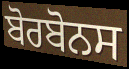
ਬੋਰਬੋਨਸ